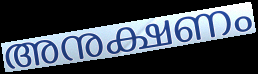
അനുക്ഷണം